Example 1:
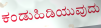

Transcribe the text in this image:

ಕಂಡುಹಿಡಿಯುವುದು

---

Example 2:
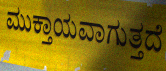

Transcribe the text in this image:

ಮುಕ್ತಾಯವಾಗುತ್ತದೆ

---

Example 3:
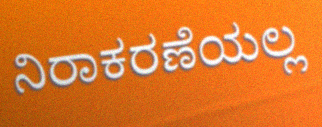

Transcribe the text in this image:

ನಿರಾಕರಣೆಯಲ್ಲ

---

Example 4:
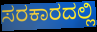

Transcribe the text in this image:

ಸರಕಾರದಲ್ಲಿ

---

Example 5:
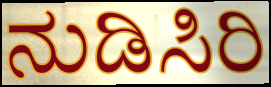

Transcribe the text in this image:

ನುಡಿಸಿರಿ